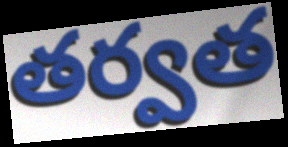
తర్వత